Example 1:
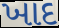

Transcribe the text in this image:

ખાદ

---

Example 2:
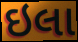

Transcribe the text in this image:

ઇલા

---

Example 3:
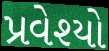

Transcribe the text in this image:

પ્રવેશ્યો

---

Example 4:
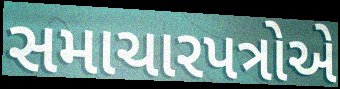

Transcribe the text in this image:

સમાચારપત્રોએ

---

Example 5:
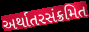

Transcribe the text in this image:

અર્થાતરસંક્રમિત